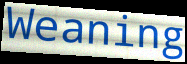
Weaning